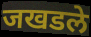
जखडले